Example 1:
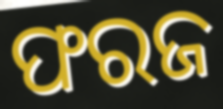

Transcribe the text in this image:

ଫରଜ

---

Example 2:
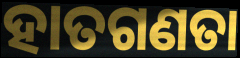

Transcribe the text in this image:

ହାତଗଣତା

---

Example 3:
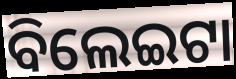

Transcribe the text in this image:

ବିଲେଇଟା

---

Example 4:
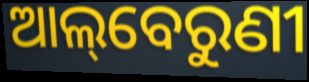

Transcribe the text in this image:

ଆଲ୍‌ବେରୁଣୀ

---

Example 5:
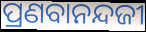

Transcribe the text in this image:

ପ୍ରଣବାନନ୍ଦଜୀ